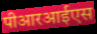
पीआरआईएस